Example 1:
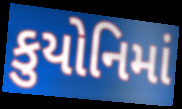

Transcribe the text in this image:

કુયોનિમાં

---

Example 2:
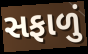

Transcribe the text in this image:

સફાળું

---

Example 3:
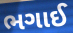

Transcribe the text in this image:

ભગાઈ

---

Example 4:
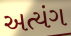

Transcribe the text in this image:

અત્યંગ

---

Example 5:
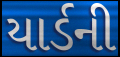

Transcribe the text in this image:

યાર્ડની